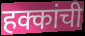
हक्कांची